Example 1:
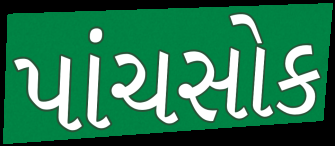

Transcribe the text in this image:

પાંચસોક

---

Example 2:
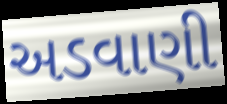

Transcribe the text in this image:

અડવાણી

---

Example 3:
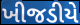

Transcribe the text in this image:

ખીજડીયે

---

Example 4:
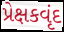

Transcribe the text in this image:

પ્રેક્ષકવૃંદ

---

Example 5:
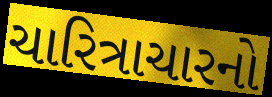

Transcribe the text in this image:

ચારિત્રાચારનો